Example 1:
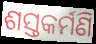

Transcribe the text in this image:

ଶସ୍ତକର୍ମଣି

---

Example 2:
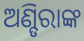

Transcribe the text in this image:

ଅଣ୍ଡିରାଙ୍କ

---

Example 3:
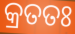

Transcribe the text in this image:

କ୍ରତତଃ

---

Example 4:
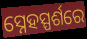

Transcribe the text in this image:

ସ୍ନେହସ୍ପର୍ଶରେ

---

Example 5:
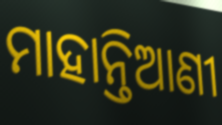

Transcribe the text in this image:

ମାହାନ୍ତିଆଣୀ